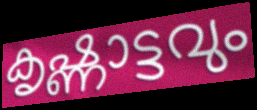
കൃഷ്ണാട്ടവും